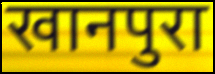
खानपुरा